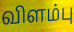
விளம்பு